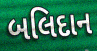
બલિદાન